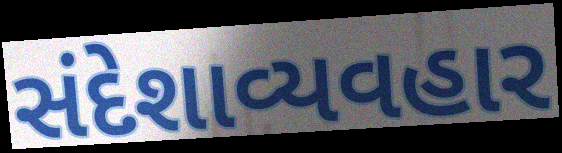
સંદેશાવ્યવહાર